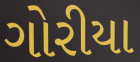
ગોરીયા